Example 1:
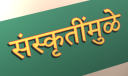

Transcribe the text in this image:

संस्कृतींमुळे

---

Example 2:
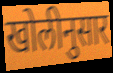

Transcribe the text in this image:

खोलीनुसार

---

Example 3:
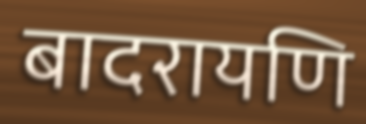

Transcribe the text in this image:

बादरायणि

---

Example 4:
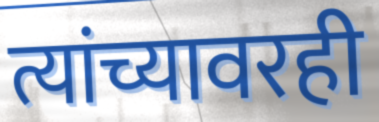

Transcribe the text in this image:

त्यांच्यावरही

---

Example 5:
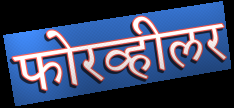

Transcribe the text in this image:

फोरव्हीलर